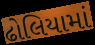
ઢોલિયામાં